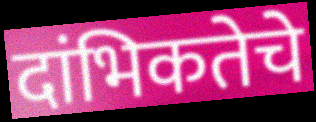
दांभिकतेचे